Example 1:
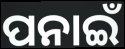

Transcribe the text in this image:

ପନାଇଁ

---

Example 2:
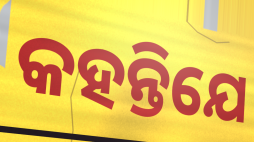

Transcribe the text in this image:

କହନ୍ତିଯେ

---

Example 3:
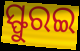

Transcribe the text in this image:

ସ୍ଫୁରଇ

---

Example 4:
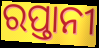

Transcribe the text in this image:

ରପ୍ତାନୀ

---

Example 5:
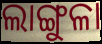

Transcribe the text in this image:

ଲାଙ୍ଗୁଳା